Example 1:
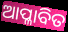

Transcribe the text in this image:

ଆପ୍ଳାବିତ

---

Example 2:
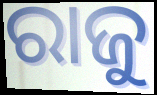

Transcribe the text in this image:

ରାଜୁ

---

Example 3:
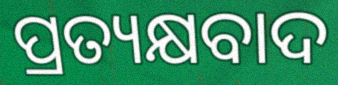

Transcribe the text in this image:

ପ୍ରତ୍ୟକ୍ଷବାଦ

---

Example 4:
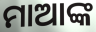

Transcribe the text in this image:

ମାଆଙ୍କ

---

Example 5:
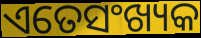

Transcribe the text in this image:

ଏତେସଂଖ୍ୟକ